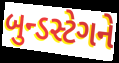
બુન્ડસ્ટેગને